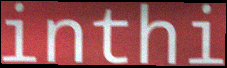
inthi